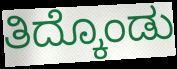
ತಿದ್ಕೊಂಡು